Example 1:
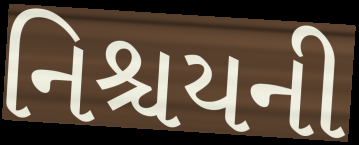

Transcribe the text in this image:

નિશ્ચયની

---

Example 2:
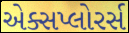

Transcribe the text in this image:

એક્સપ્લોરર્સ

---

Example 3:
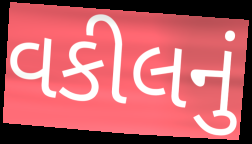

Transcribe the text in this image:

વકીલનું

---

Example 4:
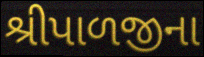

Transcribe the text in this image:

શ્રીપાળજીના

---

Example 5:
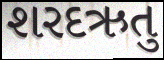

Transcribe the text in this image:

શરદઋતુ